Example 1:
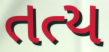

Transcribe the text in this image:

તત્ય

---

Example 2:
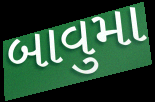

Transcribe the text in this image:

બાવુમા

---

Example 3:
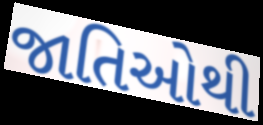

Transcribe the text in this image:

જાતિઓથી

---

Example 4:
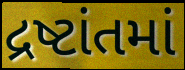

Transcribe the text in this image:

દ્રષ્ટાંતમાં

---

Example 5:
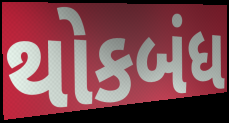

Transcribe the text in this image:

થોકબંધ